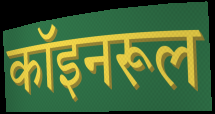
कॉइनरूल